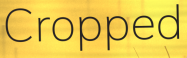
Cropped